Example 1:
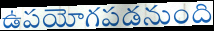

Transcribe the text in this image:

ఉపయోగపడనుంది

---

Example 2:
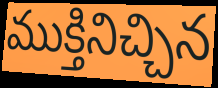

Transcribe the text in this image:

ముక్తినిచ్చిన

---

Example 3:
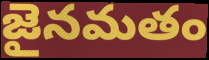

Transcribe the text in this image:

జైనమతం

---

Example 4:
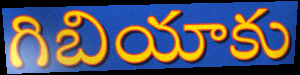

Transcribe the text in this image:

గిబియాకు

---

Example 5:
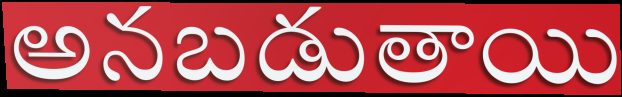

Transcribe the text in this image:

అనబడుతాయి